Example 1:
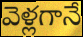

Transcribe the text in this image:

వెళ్లగానే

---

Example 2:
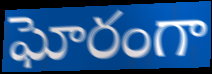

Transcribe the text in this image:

ఘోరంగా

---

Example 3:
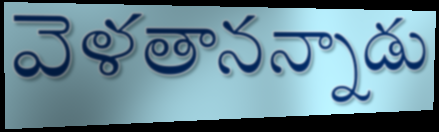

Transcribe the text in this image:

వెళతానన్నాడు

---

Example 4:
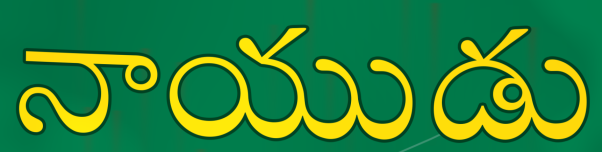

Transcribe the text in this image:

నాయుడు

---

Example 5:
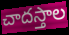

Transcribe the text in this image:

చాదస్తాల